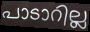
പാടാറില്ല